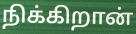
நிக்கிறான்